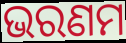
ଭରଣମ